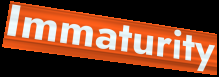
Immaturity